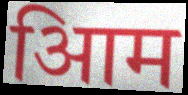
आिम